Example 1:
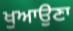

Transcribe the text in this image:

ਖੁਆਉਣਾ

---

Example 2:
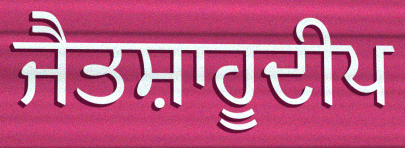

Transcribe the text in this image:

ਜੈਤਸ਼ਾਹੂਦੀਪ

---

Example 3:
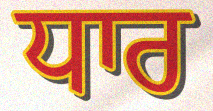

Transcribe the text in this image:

ਧਾਰ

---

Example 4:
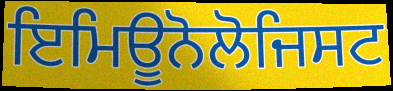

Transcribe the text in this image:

ਇਮਿਊਨੋਲੋਜਿਸਟ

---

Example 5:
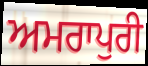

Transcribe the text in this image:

ਅਮਰਾਪੁਰੀ